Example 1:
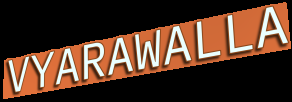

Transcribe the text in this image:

VYARAWALLA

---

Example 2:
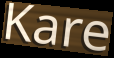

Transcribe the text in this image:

Kare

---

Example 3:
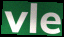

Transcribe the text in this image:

vle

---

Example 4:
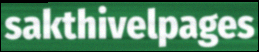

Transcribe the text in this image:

sakthivelpages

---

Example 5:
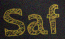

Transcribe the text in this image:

Saf